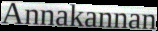
Annakannan